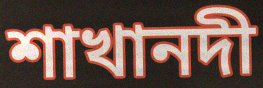
শাখানদী